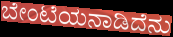
ಬೇಂಟೆಯನಾಡಿದೆನು